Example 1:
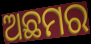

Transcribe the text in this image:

ଅଛମର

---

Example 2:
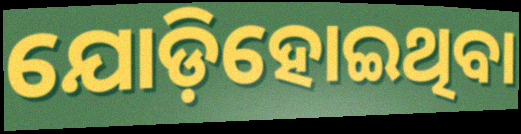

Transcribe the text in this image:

ଯୋଡ଼ିହୋଇଥିବା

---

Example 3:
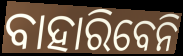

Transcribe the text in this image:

ବାହାରିବେନି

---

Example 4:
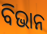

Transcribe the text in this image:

ବିଭାନ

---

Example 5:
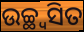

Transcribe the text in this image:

ଉଚ୍ଛ୍ୱସିତ